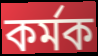
কৰ্মক